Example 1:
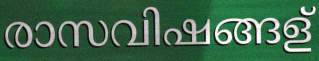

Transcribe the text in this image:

രാസവിഷങ്ങള്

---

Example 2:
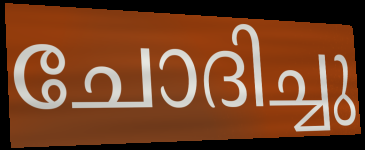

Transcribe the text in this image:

ചോദിച്ചു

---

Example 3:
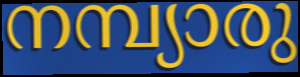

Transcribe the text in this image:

നമ്പ്യാരു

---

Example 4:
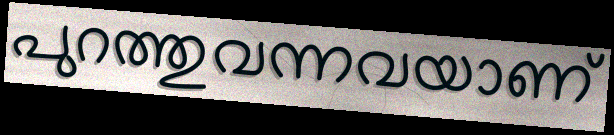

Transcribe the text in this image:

പുറത്തുവന്നവയാണ്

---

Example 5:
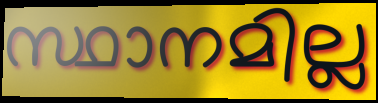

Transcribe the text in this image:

സ്ഥാനമില്ല